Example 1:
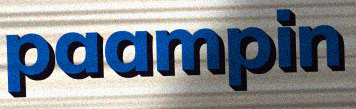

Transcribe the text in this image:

paampin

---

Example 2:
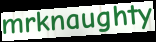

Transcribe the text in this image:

mrknaughty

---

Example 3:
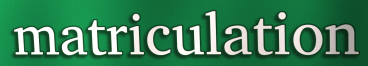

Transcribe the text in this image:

matriculation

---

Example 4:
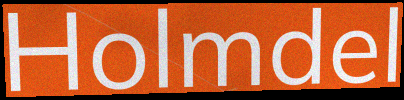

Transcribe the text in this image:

Holmdel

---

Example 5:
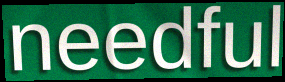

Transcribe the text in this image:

needful